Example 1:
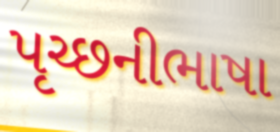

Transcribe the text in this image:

પૃચ્છનીભાષા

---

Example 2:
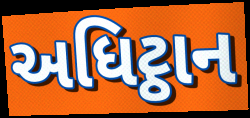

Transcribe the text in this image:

અધિટ્ઠાન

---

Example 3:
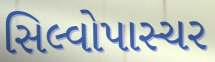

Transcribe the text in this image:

સિલ્વોપાસ્ચર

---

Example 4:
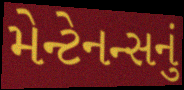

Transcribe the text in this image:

મેન્ટેનન્સનું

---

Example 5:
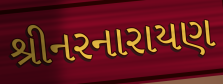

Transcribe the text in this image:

શ્રીનરનારાયણ